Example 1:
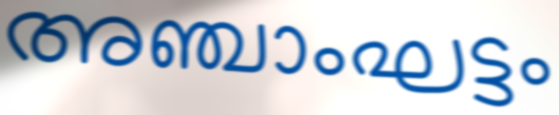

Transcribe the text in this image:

അഞ്ചാംഘട്ടം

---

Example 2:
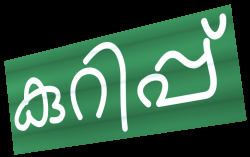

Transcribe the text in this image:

കുറിപ്പ്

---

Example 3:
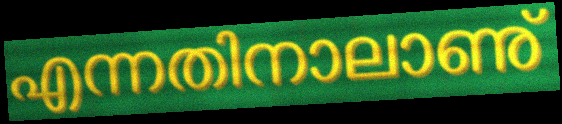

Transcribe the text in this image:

എന്നതിനാലാണു്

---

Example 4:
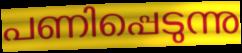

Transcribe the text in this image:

പണിപ്പെടുന്നു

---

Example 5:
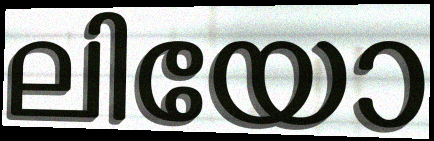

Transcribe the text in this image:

ലിയോ